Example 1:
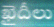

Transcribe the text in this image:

ఖైదీలు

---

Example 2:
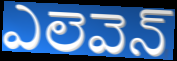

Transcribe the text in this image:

ఎలెవెన్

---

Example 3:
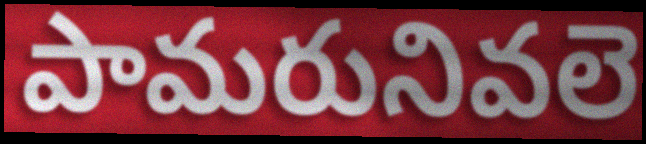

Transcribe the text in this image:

పామరునివలె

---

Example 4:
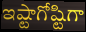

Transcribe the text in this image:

ఇష్టాగోష్టిగా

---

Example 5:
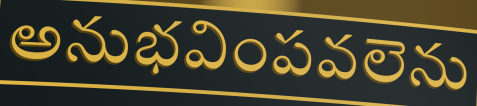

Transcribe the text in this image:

అనుభవింపవలెను